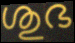
ശുഭ